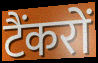
टैंकरों